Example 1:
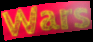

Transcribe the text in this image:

Wars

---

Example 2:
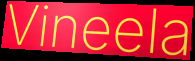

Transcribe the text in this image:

Vineela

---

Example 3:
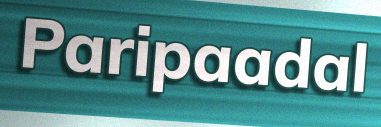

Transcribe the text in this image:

Paripaadal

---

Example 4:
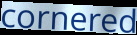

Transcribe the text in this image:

cornered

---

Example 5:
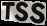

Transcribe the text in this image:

TSS